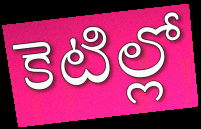
కెటిల్లో